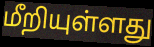
மீறியுள்ளது